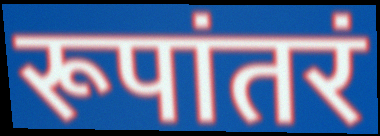
रूपांतरं